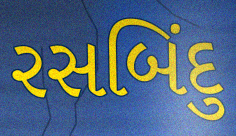
રસબિંદુ